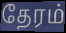
தேரம்